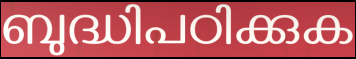
ബുദ്ധിപഠിക്കുക